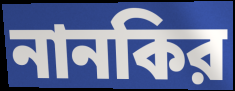
নানকির